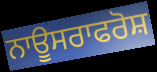
ਨਾਊਸਰਾਫਰੋਸ਼